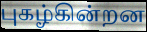
புகழ்கின்றன